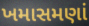
ખમાસમણાં